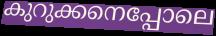
കുറുക്കനെപ്പോലെ